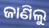
ଜାଣିଲୁ